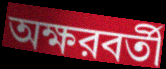
অক্ষরবর্তী